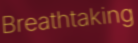
Breathtaking